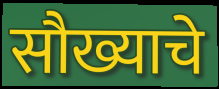
सौख्याचे